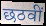
छठवीं